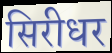
सिरीधर